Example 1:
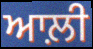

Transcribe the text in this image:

ਆਲ਼ੀ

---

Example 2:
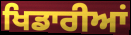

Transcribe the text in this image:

ਖਿਡਾਰੀਆਂ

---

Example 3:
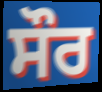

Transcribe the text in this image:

ਸੌਰ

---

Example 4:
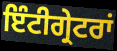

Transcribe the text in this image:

ਇੰਟੀਗ੍ਰੇਟਰਾਂ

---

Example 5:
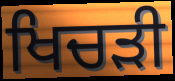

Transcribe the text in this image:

ਖਿਚੜੀ